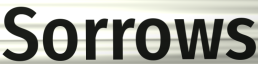
Sorrows